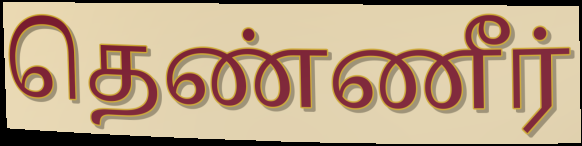
தெண்ணீர்